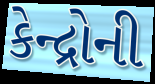
કેન્દ્રોની